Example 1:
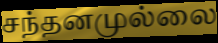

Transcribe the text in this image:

சந்தனமுல்லை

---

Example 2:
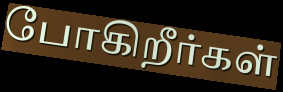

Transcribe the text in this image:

போகிறீர்கள்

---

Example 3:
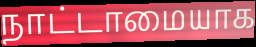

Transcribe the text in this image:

நாட்டாமையாக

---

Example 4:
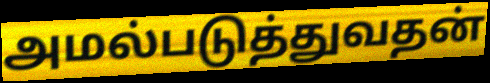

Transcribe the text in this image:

அமல்படுத்துவதன்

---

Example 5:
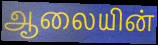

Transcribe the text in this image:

ஆலையின்